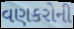
વણકરોની